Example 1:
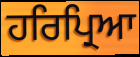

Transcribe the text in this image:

ਹਰਿਪ੍ਰਿਆ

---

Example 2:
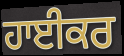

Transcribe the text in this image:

ਹਾਈਕਰ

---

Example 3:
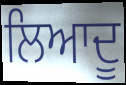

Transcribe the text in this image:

ਲਿਆਦੂ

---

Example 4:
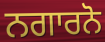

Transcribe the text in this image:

ਨਗਾਰਨੋ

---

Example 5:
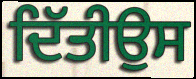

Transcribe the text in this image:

ਦਿੱਤੀਉਸ